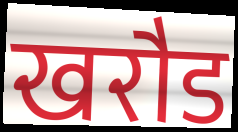
खरौड